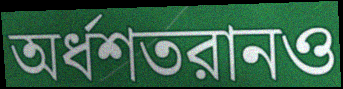
অর্ধশতরানও